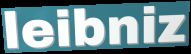
leibniz